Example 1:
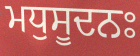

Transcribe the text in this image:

ਮਧੁਸੂਦਨਃ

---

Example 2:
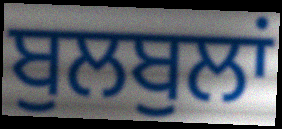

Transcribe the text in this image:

ਬੁਲਬੁਲਾਂ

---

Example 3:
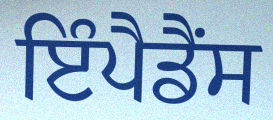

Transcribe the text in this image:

ਇੰਪੈਡੈਂਸ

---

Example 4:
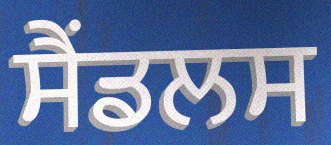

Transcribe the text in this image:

ਸੈਂਡਲਸ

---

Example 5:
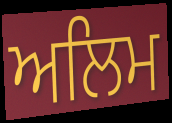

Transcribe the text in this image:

ਅਲਿਮ